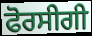
ਫੋਰਸੀਗੀ